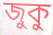
জুকু